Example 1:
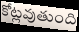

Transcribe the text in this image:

కోట్లవుతుంది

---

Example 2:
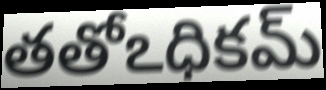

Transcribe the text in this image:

తతోఽధికమ్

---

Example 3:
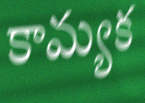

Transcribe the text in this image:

కామ్యక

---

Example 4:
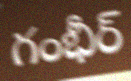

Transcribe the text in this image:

గంభీర్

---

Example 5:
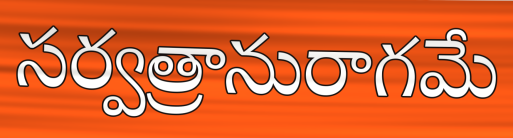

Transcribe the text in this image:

సర్వత్రానురాగమే